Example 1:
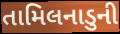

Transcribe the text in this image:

તામિલનાડુની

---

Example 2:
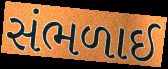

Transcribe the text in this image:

સંભળાઈ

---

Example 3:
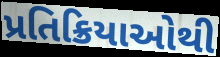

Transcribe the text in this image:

પ્રતિક્રિયાઓથી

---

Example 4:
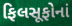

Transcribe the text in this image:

ફિલસૂફોનાં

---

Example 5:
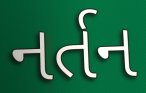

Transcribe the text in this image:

નર્તન